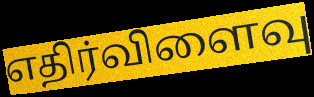
எதிர்விளைவு